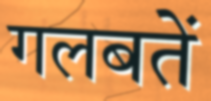
गलबतें